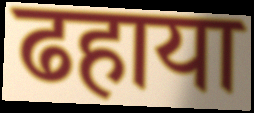
ढहाया